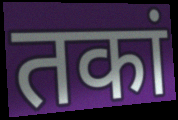
तकां